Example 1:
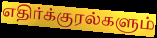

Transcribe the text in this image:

எதிர்க்குரல்களும்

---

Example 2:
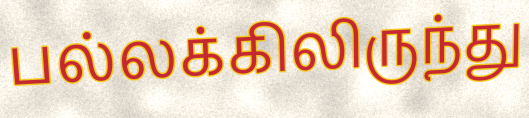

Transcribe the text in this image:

பல்லக்கிலிருந்து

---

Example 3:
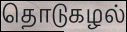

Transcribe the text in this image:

தொடுகழல்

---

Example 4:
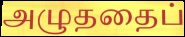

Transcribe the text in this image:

அழுததைப்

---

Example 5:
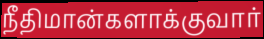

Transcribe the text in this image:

நீதிமான்களாக்குவார்